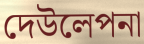
দেউলেপনা